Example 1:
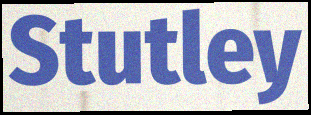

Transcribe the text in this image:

Stutley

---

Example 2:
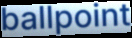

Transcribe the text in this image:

ballpoint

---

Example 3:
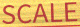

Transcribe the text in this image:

SCALE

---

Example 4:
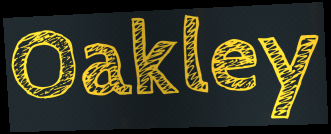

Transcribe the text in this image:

Oakley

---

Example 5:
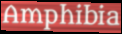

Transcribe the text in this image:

Amphibia